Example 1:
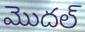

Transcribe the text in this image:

మొదల్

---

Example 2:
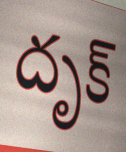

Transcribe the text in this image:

దృక్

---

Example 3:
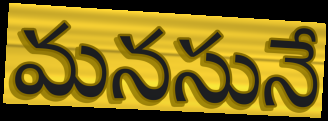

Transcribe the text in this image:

మనసునే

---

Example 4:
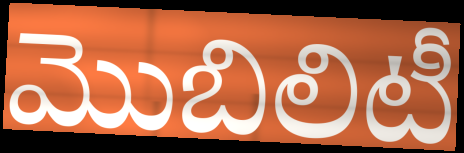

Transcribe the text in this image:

మొబిలిటీ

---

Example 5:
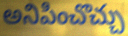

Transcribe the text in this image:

అనిపించొచ్చు